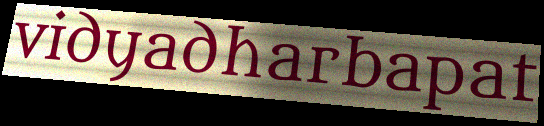
vidyadharbapat